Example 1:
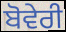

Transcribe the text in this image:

ਬੋਵੇਰੀ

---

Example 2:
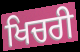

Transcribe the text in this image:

ਖਿਚਰੀ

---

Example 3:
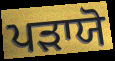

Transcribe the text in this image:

ਪੜਾਯੋ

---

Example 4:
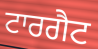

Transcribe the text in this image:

ਟਾਰਗੈਟ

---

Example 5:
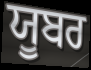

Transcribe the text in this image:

ਯੂਬਰ